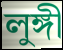
লুঙ্গী